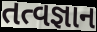
તત્વજ્ઞાન